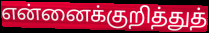
என்னைக்குறித்துத்